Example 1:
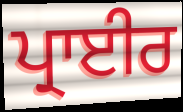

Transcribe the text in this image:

ਪ੍ਰਾਈਰ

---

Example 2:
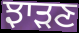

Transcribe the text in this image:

ਝਾੜਣ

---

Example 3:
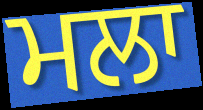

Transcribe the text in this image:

ਮਲਾ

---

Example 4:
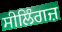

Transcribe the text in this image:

ਸੀਲਿੰਗਜ਼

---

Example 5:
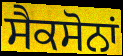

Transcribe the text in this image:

ਸੈਕਸੋਨਾਂ